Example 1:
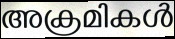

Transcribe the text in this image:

അക്രമികൾ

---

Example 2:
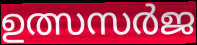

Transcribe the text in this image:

ഉത്സസർജ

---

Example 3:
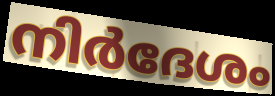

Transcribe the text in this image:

നിർദേശം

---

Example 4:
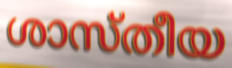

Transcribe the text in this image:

ശാസ്തീയ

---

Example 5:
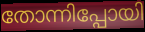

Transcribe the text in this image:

തോന്നിപ്പോയി